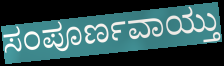
ಸಂಪೂರ್ಣವಾಯ್ತು